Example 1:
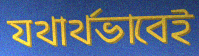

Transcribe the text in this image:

যথার্থভাবেই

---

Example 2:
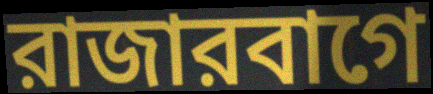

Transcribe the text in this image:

রাজারবাগে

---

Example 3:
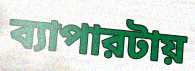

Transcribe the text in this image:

ব্যাপারটায়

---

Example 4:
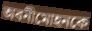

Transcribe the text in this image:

অবনীমোহনকে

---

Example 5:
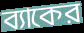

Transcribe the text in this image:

ব্যাকের